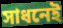
সাধনেই